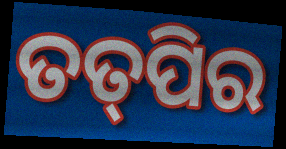
ତତ୍‌ପିର